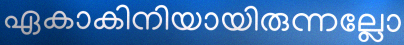
ഏകാകിനിയായിരുന്നല്ലോ